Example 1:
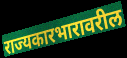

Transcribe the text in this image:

राज्यकारभारावरील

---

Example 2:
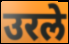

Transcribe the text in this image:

उरले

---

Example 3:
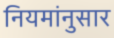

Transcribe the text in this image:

नियमांनुसार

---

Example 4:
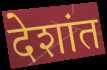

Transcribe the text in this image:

देशांत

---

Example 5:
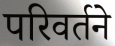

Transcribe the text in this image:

परिवर्तने